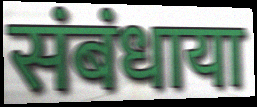
संबंधाया